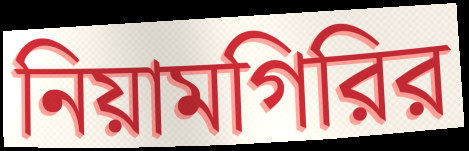
নিয়ামগিরির